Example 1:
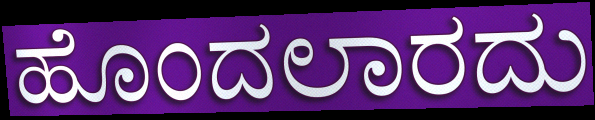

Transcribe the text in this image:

ಹೊಂದಲಾರದು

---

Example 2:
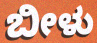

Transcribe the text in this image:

ಬೀಳು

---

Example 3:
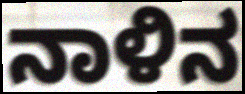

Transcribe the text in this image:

ನಾಳಿನ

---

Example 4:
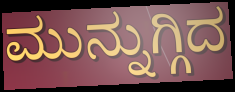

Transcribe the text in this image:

ಮುನ್ನುಗ್ಗಿದ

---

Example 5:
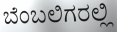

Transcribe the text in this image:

ಬೆಂಬಲಿಗರಲ್ಲಿ